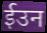
ईउन